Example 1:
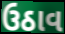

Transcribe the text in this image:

ઉઠાવ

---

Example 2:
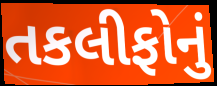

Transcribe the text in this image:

તકલીફોનું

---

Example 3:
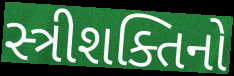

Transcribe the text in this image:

સ્ત્રીશક્તિનો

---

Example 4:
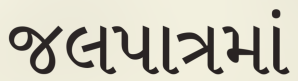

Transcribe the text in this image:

જલપાત્રમાં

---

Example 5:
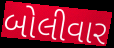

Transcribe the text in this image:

બોલીવાર